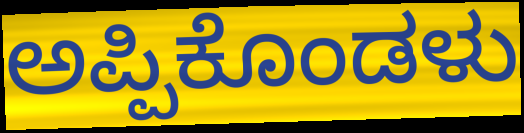
ಅಪ್ಪಿಕೊಂಡಳು